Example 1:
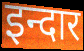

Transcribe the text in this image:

इन्दार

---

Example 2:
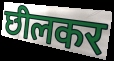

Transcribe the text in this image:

छीलकर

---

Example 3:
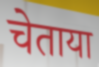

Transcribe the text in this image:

चेताया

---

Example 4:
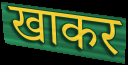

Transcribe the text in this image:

खाकर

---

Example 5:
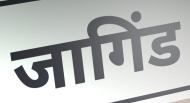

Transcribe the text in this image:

जागिंड